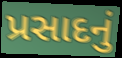
પ્રસાદનું